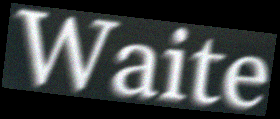
Waite